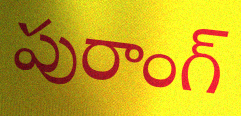
పురాంగ్